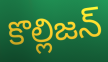
కొల్లిజన్